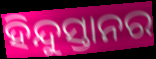
ହିନ୍ଦୁସ୍ତାନର